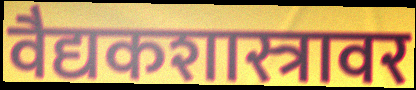
वैद्यकशास्त्रावर